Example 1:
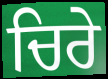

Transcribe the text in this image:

ਚਿਰੇ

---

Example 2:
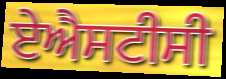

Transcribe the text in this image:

ਏਐਸਟੀਸੀ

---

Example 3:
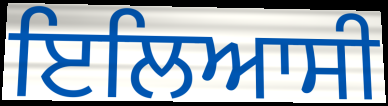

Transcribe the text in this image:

ਇਲਿਆਸੀ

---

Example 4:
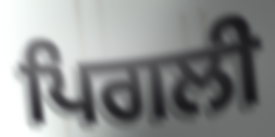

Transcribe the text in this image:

ਪਿਗਲੀ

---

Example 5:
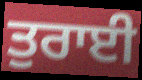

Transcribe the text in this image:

ਤੁਰਾਈ